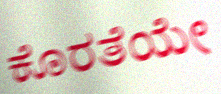
ಕೊರತೆಯೇ